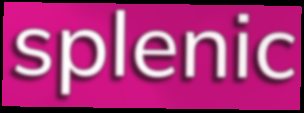
splenic